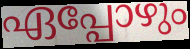
ഏപ്പോഴും